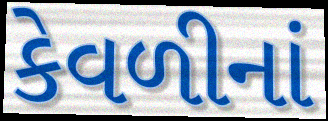
કેવળીનાં